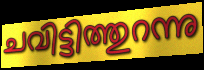
ചവിട്ടിത്തുറന്നു